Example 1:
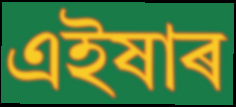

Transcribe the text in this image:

এইষাৰ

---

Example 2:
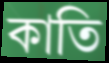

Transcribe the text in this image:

কাতি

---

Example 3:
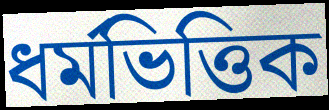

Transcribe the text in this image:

ধৰ্মভিত্তিক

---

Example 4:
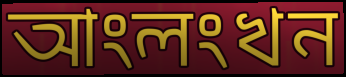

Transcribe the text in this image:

আংলংখন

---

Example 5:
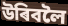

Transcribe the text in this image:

উৰিবলৈ